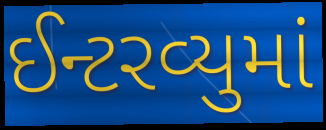
ઈન્ટરવ્યુમાં